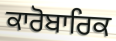
ਕਾਰੋਬਾਰਿਕ